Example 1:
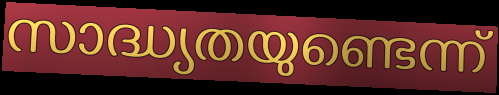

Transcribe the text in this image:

സാദ്ധ്യതയുണ്ടെന്ന്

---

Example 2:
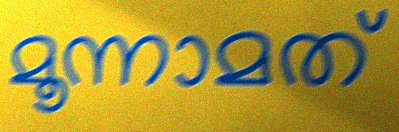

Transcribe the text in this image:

മൂന്നാമത്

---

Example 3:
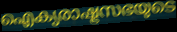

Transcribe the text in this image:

ഐക്യരാഷ്ട്രസഭയുടെ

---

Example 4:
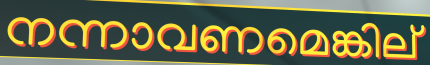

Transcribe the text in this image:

നന്നാവണമെങ്കില്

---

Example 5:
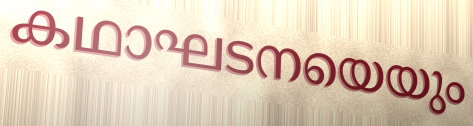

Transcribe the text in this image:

കഥാഘടനയെയും